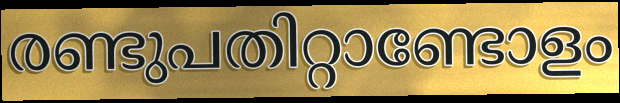
രണ്ടുപതിറ്റാണ്ടോളം